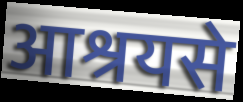
आश्रयसे